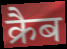
क्रैब